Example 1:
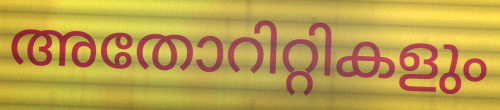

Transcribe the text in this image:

അതോറിറ്റികളും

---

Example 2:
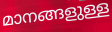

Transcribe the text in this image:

മാനങ്ങളുള്ള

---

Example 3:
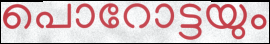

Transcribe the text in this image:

പൊറോട്ടയും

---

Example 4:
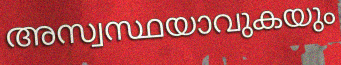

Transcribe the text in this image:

അസ്വസ്ഥയാവുകയും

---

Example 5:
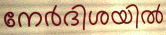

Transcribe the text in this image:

നേർദിശയിൽ